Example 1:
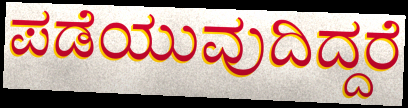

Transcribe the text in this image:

ಪಡೆಯುವುದಿದ್ದರೆ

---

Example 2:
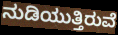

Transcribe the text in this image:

ನುಡಿಯುತ್ತಿರುವೆ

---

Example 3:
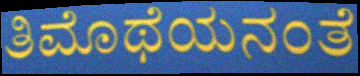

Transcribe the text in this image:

ತಿಮೊಥೆಯನಂತೆ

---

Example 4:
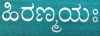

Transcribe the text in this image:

ಹಿರಣ್ಮಯಃ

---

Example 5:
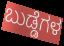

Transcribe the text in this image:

ಬುಡ್ಡೆಗಳ